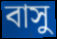
বাসু